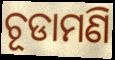
ଚୂଡାମଣି